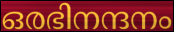
ഒരഭിനന്ദനം